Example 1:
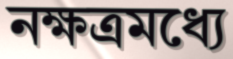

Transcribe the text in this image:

নক্ষত্রমধ্যে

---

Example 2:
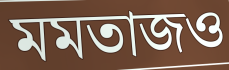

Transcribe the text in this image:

মমতাজও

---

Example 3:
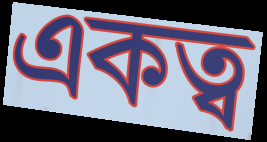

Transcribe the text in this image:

একত্ব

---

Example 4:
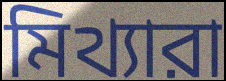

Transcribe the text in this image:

মিথ্যারা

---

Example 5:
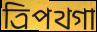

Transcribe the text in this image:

ত্রিপথগা